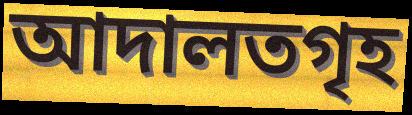
আদালতগৃহ